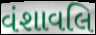
વંશાવલિ